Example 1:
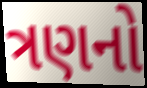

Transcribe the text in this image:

ત્રણનો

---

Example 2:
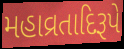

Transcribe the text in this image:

મહાવ્રતાદિરૂપે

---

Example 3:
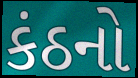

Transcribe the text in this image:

કંઠનો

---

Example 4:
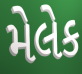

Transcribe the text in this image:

મેલેક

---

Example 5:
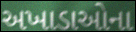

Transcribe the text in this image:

અખાડાઓના